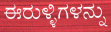
ಈರುಳ್ಳಿಗಳನ್ನು